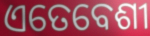
ଏତେବେଶୀ